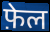
फ़ेल